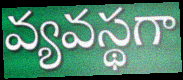
వ్యవస్థగా